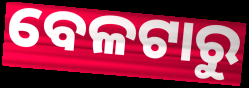
ବେଳଟାରୁ